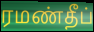
ரமண்தீப்